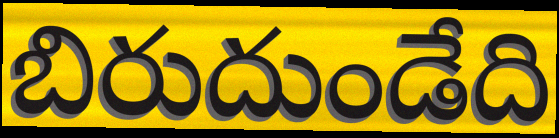
బిరుదుండేది